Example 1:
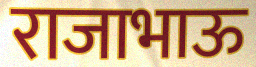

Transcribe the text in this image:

राजाभाऊ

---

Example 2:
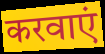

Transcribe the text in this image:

करवाएं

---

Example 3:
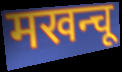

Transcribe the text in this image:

मखन्चू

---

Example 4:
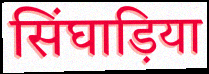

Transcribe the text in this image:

सिंघाड़िया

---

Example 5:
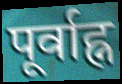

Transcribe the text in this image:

पूर्वाह्न